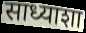
साध्याशा